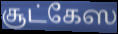
சூட்கேஸ